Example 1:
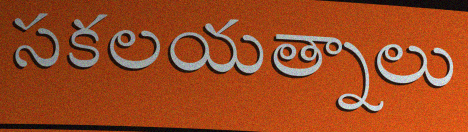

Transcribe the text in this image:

సకలయత్నాలు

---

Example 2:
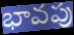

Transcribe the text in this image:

భావపు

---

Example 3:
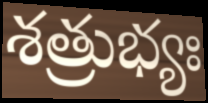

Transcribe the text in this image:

శత్రుభ్యః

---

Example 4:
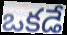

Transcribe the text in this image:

ఒకడే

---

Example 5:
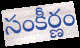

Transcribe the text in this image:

సంకీర్ణం